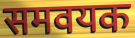
समवयक